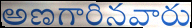
అణగారినవారు